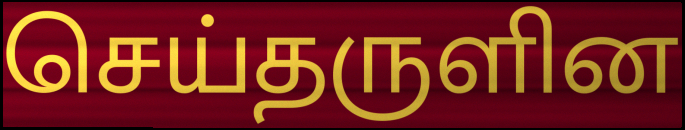
செய்தருளின